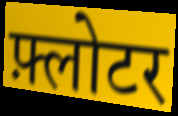
फ़्लोटर